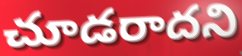
చూడరాదని